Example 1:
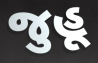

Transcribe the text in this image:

જુહૂ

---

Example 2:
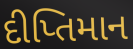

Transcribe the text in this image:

દીપ્તિમાન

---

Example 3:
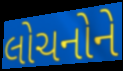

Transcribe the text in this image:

લોચનોને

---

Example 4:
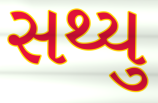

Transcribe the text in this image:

સથ્યુ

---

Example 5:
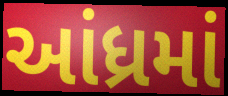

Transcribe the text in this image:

આંધ્રમાં